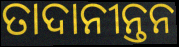
ତାଦାନୀନ୍ତନ